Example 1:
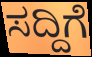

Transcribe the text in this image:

ಸದ್ದಿಗೆ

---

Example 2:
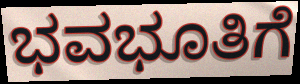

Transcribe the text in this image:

ಭವಭೂತಿಗೆ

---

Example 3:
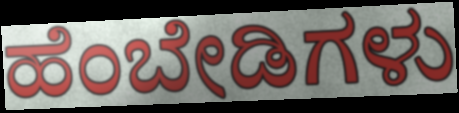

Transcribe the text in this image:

ಹೆಂಬೇಡಿಗಳು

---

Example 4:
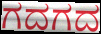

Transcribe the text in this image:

ಗದಗದ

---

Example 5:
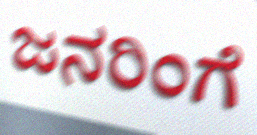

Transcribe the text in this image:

ಜನರಿಂಗೆ